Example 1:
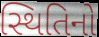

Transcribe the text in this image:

સ્થિતિનો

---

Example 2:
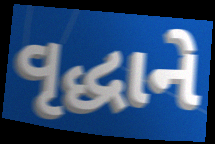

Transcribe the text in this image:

વૃદ્ધાને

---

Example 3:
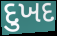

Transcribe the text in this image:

દુખદ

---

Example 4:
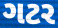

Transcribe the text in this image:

ગટર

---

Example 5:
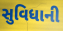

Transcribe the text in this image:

સુવિધાની